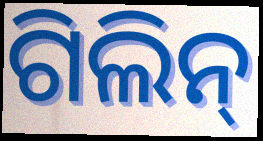
ଗିଲିନ୍